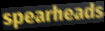
spearheads